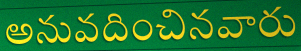
అనువదించినవారు